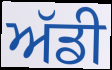
ਅੱਡੀ